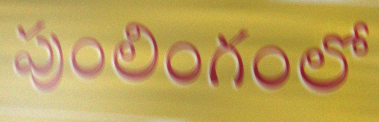
పుంలింగంలో